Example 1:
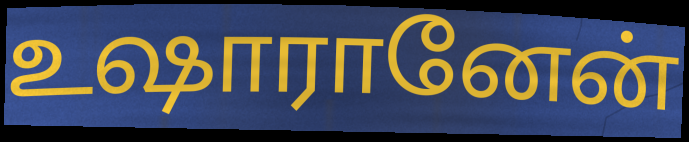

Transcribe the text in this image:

உஷாரானேன்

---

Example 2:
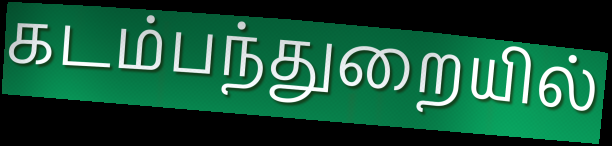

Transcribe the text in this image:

கடம்பந்துறையில்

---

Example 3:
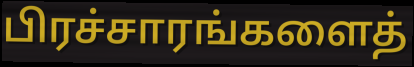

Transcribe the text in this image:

பிரச்சாரங்களைத்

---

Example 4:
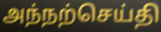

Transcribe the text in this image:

அந்நற்செய்தி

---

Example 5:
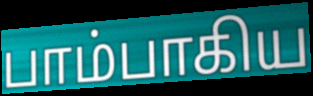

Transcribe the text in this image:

பாம்பாகிய